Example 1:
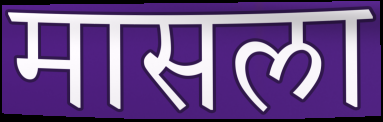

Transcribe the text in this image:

मासला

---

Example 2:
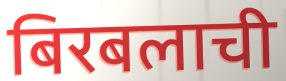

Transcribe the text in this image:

बिरबलाची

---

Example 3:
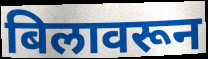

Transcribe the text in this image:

बिलावरून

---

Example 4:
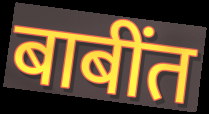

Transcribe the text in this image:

बाबींत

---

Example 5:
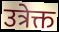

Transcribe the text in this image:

उत्रेक्त